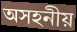
অসহনীয়